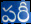
పరీ